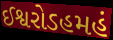
ઈશ્વરોઽહમહં